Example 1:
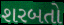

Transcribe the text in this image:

શરબતો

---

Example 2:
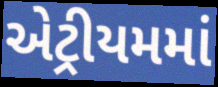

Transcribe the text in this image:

એટ્રીયમમાં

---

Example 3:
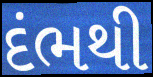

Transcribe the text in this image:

દંભથી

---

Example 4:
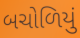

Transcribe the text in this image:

બચોળિયું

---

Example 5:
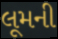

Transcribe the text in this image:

લૂમની